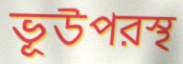
ভূউপরস্থ